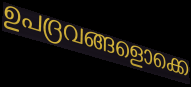
ഉപദ്രവങ്ങളൊക്കെ